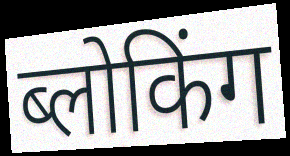
ब्लोकिंग